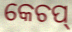
କେଚପ୍